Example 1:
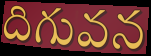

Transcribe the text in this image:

దిగువన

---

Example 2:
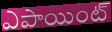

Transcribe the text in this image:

ఎపాయింట్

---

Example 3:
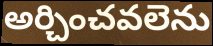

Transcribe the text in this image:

అర్చించవలెను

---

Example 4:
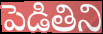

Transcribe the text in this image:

పెడితిని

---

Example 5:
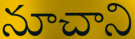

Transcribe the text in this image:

నూచాని